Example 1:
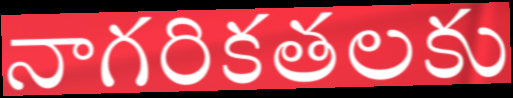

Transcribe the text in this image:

నాగరికతలకు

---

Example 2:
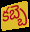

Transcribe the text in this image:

కబ్బె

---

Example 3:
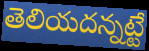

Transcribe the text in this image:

తెలియదన్నట్టే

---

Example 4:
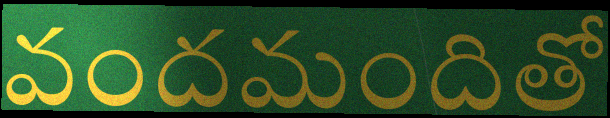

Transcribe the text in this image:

వందమందితో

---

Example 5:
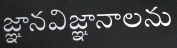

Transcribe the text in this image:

జ్ఞానవిజ్ఞానాలను